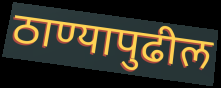
ठाण्यापुढील